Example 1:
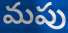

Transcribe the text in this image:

మపు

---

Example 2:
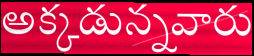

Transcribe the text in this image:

అక్కడున్నవారు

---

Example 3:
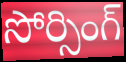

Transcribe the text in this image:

సోర్సింగ్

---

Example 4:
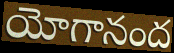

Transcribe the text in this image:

యోగానంద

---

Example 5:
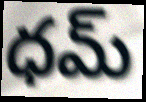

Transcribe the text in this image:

ధమ్